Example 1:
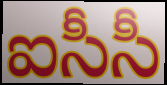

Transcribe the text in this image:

ఐసీసీ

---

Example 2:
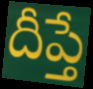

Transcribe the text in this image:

దీప్తే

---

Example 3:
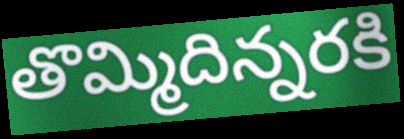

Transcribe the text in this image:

తొమ్మిదిన్నరకి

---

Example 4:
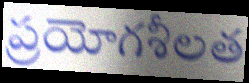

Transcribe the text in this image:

ప్రయోగశీలత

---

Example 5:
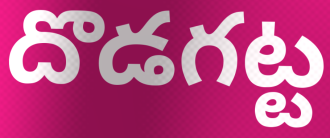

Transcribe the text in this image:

దొడగట్ట